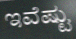
ಇವೆಷ್ಟು